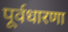
पूर्वधारणा